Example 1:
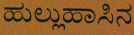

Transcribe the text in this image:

ಹುಲ್ಲುಹಾಸಿನ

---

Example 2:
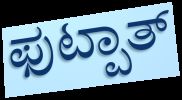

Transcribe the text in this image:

ಫುಟ್ಪಾತ್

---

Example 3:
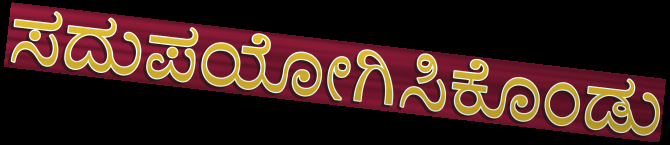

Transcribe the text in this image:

ಸದುಪಯೋಗಿಸಿಕೊಂಡು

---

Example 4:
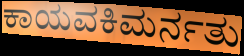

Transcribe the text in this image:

ಕಾಯವಕಿಮರ್ನತು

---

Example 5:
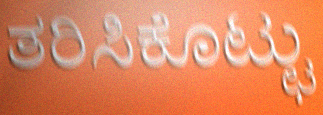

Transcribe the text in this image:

ತರಿಸಿಕೊಟ್ಟು